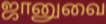
ஜானுவை